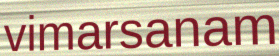
vimarsanam